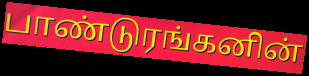
பாண்டுரங்கனின்